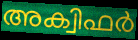
അക്വിഫർ